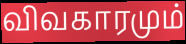
விவகாரமும்